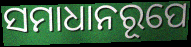
ସମାଧାନରୂପେ